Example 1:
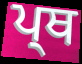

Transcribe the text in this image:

ਪ੍ਥ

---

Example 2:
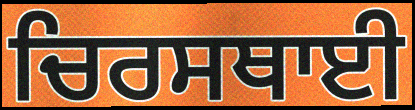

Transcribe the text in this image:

ਚਿਰਸਥਾਈ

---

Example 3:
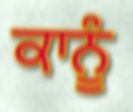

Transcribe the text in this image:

ਕਾਨੂੰ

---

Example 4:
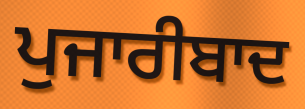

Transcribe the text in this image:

ਪੁਜਾਰੀਬਾਦ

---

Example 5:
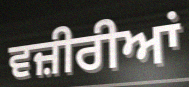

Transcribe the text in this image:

ਵਜ਼ੀਰੀਆਂ